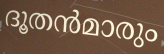
ദൂതൻമാരും